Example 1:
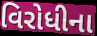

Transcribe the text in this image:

વિરોધીના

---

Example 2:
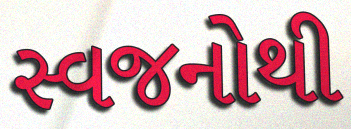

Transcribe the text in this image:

સ્વજનોથી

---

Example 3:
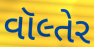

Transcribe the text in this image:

વૉલ્તેર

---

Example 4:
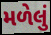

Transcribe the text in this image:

મળેલું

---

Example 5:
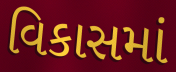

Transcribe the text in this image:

વિકાસમાં